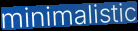
minimalistic